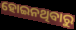
ହୋଇନଥିବାରୁ